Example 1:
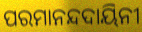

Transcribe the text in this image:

ପରମାନନ୍ଦଦାୟିନୀ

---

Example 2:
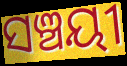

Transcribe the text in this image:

ସଞ୍ଚୟୀ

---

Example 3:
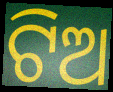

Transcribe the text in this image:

ଟିଅ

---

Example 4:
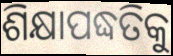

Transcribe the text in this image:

ଶିକ୍ଷାପଦ୍ଧତିକୁ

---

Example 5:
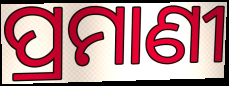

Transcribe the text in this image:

ପ୍ରମାଣୀ